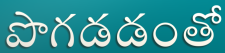
పొగడడంతో